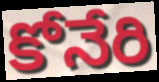
కోనేరి